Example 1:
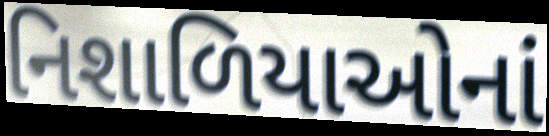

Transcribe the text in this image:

નિશાળિયાઓનાં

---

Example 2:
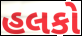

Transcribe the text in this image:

હલકો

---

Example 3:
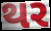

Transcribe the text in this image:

થર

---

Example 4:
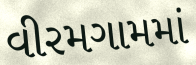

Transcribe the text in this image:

વીરમગામમાં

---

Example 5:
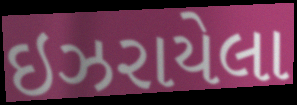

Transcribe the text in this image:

ઇઝરાયેલા